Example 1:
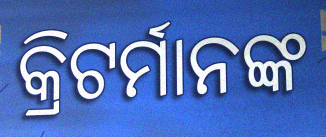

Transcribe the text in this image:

କ୍ରିଟର୍ମାନଙ୍କ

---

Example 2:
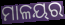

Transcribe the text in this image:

ମାଳୟର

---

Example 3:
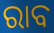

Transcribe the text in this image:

ରାବ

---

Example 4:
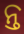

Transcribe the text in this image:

ନ୍ତ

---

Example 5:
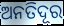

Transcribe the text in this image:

ଅନତିଦୂର